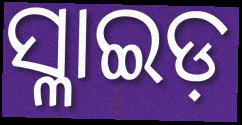
ସ୍ଳାଇଡ଼